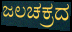
ಜಲಚಕ್ರದ